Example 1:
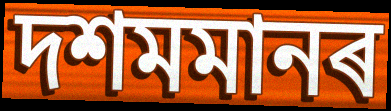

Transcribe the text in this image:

দশমমানৰ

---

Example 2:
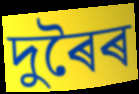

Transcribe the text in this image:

দুৰৈৰ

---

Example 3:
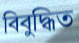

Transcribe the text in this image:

বিবুদ্ধিত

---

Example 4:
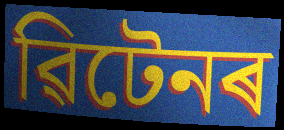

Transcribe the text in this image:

ৱিটেনৰ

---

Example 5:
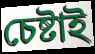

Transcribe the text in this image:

চেষ্টাই